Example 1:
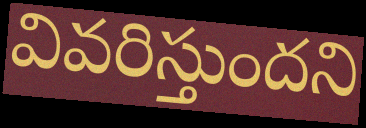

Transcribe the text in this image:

వివరిస్తుందని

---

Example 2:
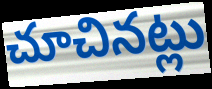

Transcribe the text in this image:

చూచినట్లు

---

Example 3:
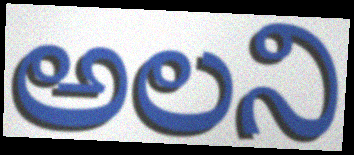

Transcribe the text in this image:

అలని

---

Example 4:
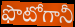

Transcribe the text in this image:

ఫొటోగానీ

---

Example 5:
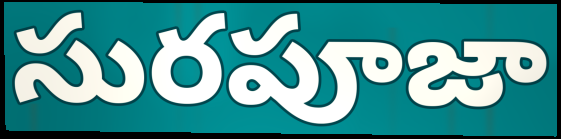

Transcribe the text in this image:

సురపూజా